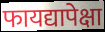
फायद्यापेक्षा